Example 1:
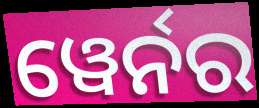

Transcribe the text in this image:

ୱେର୍ନର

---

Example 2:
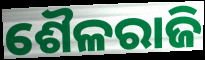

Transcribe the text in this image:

ଶୈଳରାଜି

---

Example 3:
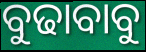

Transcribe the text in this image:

ବୁଢାବାବୁ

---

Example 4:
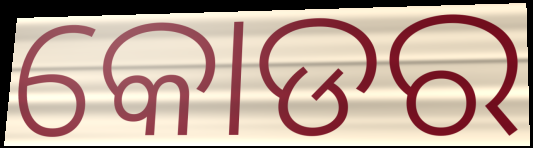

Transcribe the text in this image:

କୋଡର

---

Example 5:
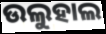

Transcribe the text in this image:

ଉଲୁହାଲ